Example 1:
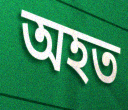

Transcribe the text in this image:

অহত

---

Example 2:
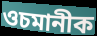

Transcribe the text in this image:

ওচমানীক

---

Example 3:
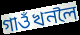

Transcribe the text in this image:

গাওঁখনলৈ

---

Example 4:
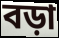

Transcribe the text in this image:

বড়া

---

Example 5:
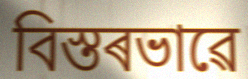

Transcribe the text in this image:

বিস্তৰভাৱে